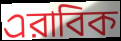
এরাবিক